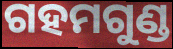
ଗହମଗୁଣ୍ଡ